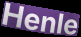
Henle